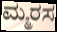
ಮ್ಮರಸ